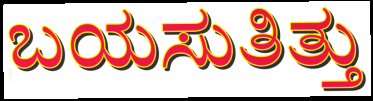
ಬಯಸುತಿತ್ತು